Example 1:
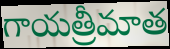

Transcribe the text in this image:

గాయత్రీమాత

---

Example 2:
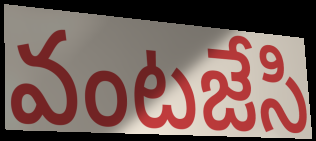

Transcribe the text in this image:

వంటజేసి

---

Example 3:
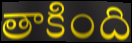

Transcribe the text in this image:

తాకింది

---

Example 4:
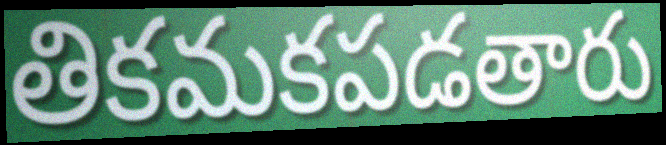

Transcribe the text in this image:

తికమకపడతారు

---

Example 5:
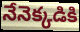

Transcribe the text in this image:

నేనెక్కడికి